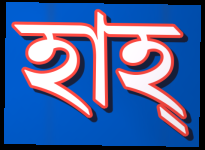
হাহ্